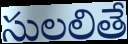
సులలితే